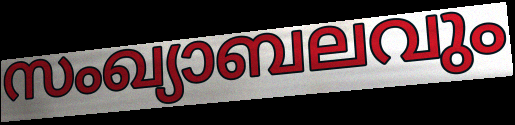
സംഖ്യാബലവും